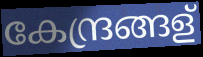
കേന്ദ്രങ്ങള്